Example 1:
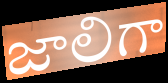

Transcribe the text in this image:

జాలిగా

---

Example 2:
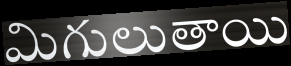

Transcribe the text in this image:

మిగులుతాయి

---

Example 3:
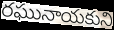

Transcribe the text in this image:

రఘునాయకుని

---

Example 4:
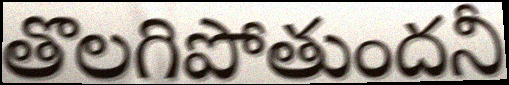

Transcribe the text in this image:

తొలగిపోతుందనీ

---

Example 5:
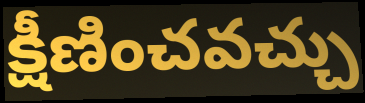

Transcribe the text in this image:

క్షీణించవచ్చు